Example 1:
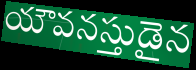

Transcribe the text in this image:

యౌవనస్తుడైన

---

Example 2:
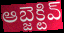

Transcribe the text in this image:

ఆబ్జెక్టివ్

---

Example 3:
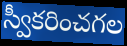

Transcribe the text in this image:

స్వీకరించగల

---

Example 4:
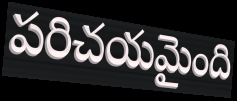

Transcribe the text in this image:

పరిచయమైంది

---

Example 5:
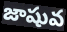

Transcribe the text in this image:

జాషువ